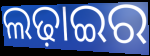
ଲଢ଼ାଇର